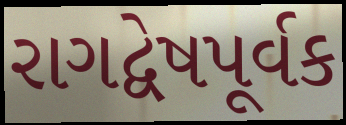
રાગદ્વેષપૂર્વક